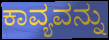
ಕಾವ್ಯವನ್ನು